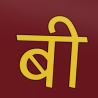
बी